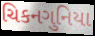
ચિકનગુનિયા